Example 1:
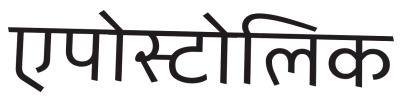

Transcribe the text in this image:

एपोस्टोलिक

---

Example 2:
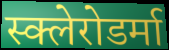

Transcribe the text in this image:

स्क्लेरोडर्मा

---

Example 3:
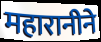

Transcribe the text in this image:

महारानीने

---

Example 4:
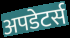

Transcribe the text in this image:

अपडेटर्स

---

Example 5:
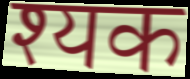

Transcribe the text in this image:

श्यक